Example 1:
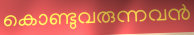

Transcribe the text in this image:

കൊണ്ടുവരുന്നവൻ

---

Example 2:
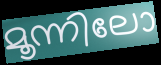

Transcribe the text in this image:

മൂന്നിലോ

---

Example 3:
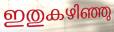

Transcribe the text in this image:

ഇതുകഴിഞ്ഞു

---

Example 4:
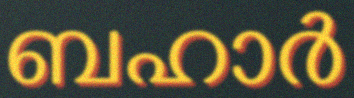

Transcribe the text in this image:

ബഹാർ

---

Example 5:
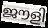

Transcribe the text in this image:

ജൗളി